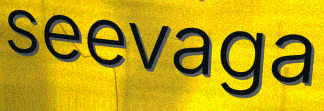
seevaga